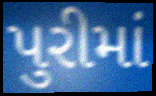
પુરીમાં